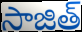
సాజిత్